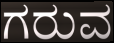
ಗರುವ